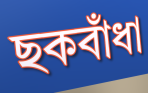
ছকবাঁধা